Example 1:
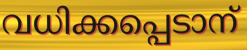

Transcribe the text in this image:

വധിക്കപ്പെടാന്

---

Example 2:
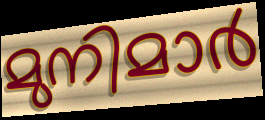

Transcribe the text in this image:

മുനിമാർ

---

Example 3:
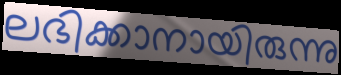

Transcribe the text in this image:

ലഭിക്കാനായിരുന്നു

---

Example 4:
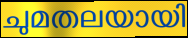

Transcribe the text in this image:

ചുമതലയായി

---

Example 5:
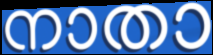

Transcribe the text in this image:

നാതാ